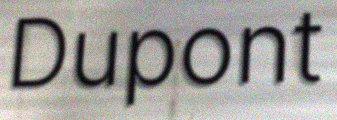
Dupont